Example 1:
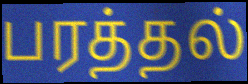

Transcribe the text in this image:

பரத்தல்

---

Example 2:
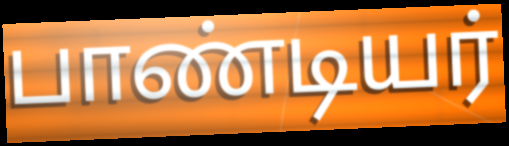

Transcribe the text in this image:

பாண்டியர்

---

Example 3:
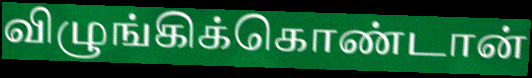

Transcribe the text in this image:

விழுங்கிக்கொண்டான்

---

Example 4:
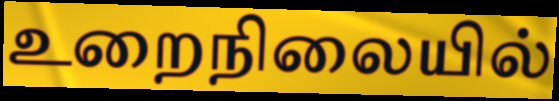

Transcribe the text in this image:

உறைநிலையில்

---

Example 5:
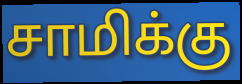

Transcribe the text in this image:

சாமிக்கு